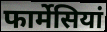
फार्मेसियां